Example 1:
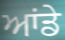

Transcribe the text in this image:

ਆਂਡੇ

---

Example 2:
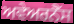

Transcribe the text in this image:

ਅਵੇਅਰਨੈੱਸ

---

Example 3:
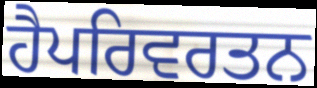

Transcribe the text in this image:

ਹੈਪਰਿਵਰਤਨ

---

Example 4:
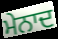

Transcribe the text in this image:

ਮੇਨਾਦ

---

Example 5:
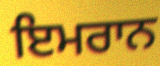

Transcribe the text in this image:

ਇਮਰਾਨ